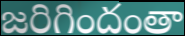
జరిగిందంతా